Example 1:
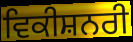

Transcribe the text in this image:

ਵਿਕੀਸ਼ਨਰੀ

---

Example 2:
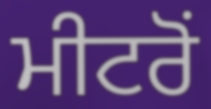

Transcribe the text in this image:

ਮੀਟਰੋਂ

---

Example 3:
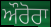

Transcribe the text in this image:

ਔਰੋਰਾ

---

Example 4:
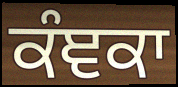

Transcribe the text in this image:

ਕੰਞਕਾ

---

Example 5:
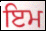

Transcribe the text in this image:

ਇਮ